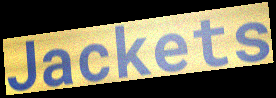
Jackets